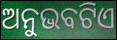
ଅନୁଭବଟିଏ